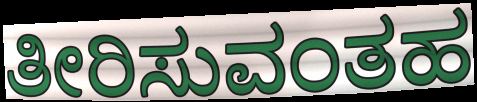
ತೀರಿಸುವಂತಹ